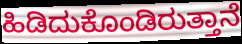
ಹಿಡಿದುಕೊಂಡಿರುತ್ತಾನೆ